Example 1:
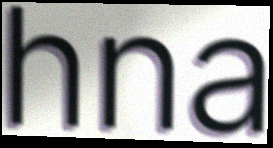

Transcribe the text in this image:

hna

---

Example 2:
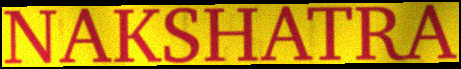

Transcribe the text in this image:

NAKSHATRA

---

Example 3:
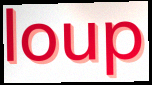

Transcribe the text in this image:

loup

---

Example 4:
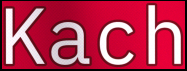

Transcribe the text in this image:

Kach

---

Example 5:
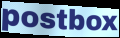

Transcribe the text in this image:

postbox